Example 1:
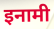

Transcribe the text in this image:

इनामी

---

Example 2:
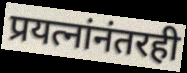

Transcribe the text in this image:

प्रयत्नांनंतरही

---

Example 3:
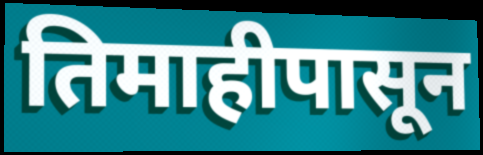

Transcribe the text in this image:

तिमाहीपासून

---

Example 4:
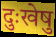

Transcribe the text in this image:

दुःखेषु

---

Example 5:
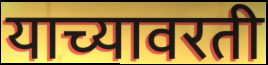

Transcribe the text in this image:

याच्यावरती